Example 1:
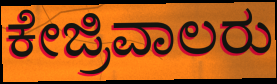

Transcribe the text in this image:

ಕೇಜ್ರಿವಾಲರು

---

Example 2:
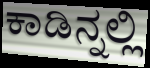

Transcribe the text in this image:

ಕಾಡಿನ್ನಲ್ಲಿ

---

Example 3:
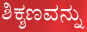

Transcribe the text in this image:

ಶಿಕ್ಶಣವನ್ನು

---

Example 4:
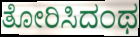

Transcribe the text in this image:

ತೋರಿಸಿದಂಥ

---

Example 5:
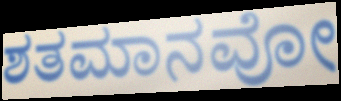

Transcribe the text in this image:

ಶತಮಾನವೋ